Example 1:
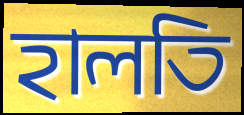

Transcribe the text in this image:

হালতি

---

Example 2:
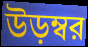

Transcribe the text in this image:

উড়ম্বর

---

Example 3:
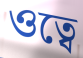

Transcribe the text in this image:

ওত্বে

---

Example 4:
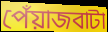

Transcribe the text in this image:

পেঁয়াজবাটা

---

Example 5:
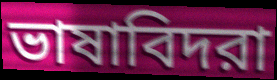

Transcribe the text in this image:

ভাষাবিদরা